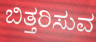
ಬಿತ್ತರಿಸುವ